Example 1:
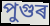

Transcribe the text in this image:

পুগুৰ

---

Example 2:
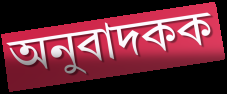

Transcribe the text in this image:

অনুবাদকক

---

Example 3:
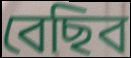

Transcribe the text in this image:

বেছিব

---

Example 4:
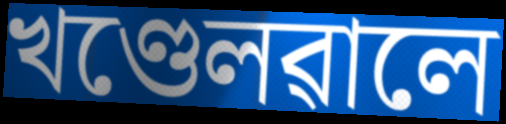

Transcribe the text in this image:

খণ্ডেলৱালে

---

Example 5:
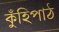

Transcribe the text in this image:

কুঁহিপাঠ